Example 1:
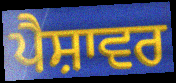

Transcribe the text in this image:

ਪੈਸ਼ਾਵਰ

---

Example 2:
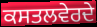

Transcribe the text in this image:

ਕਸਤਲਵੇਰਦੇ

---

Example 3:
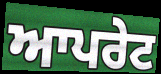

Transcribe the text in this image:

ਆਪਰੇਟ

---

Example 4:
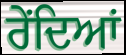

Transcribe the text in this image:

ਰੇਂਦਿਆਂ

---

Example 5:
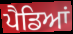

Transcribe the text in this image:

ਪੈਡਿਆਂ